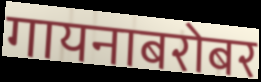
गायनाबरोबर